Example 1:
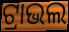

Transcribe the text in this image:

ଟ୍ରାଭଲ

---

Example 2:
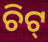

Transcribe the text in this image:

ଚିଟ୍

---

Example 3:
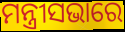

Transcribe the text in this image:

ମନ୍ତ୍ରୀସଭାରେ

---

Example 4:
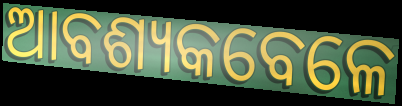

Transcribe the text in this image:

ଆବଶ୍ୟକବେଳେ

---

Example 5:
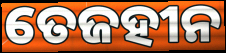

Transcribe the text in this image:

ତେଜହୀନ